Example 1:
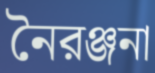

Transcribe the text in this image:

নৈরঞ্জনা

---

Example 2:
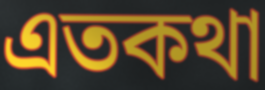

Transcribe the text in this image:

এতকথা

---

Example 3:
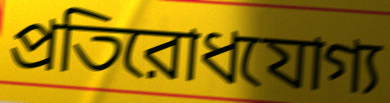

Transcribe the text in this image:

প্রতিরোধযোগ্য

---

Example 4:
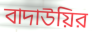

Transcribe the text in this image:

বাদাউয়ির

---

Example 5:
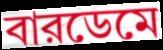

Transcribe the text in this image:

বারডেমে